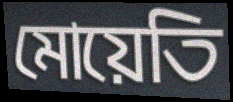
মোয়েতি